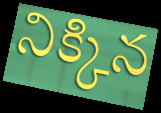
నిక్కిన